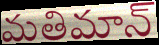
మతిమాన్